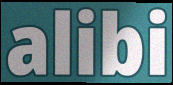
alibi